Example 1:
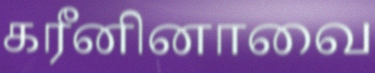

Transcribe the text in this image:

கரீனினாவை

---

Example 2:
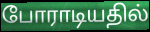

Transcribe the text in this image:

போராடியதில்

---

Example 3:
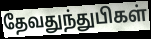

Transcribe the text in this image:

தேவதுந்துபிகள்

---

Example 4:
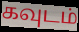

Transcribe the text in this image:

கவுடம்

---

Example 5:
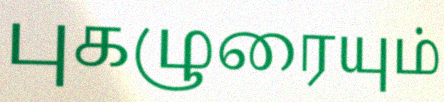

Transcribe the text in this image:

புகழுரையும்